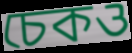
চেকও